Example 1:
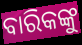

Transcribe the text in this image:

ବାରିକଙ୍କୁ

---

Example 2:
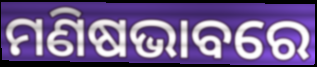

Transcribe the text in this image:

ମଣିଷଭାବରେ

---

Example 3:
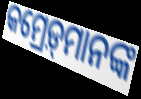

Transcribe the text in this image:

କମ୍ରେଡ଼୍‍ମାନଙ୍କ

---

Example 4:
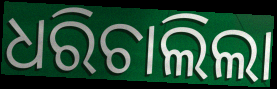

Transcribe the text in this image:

ଧରିଚାଲିଲା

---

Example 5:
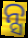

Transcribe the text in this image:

ନ୍ସ